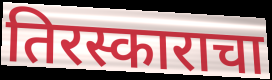
तिरस्काराचा